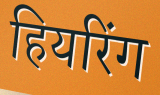
हियरिंग